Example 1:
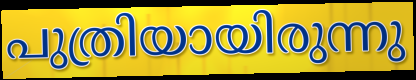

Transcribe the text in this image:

പുത്രിയായിരുന്നു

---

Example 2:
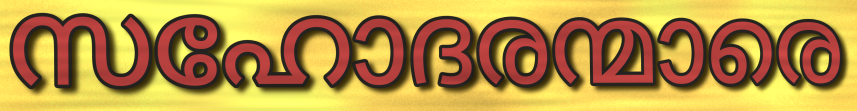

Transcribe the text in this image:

സഹോദരന്മാരെ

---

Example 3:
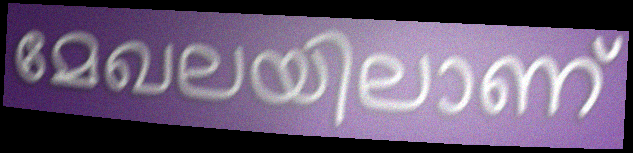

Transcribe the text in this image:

മേഖലയിലാണ്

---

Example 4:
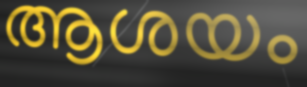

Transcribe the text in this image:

ആശയം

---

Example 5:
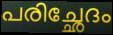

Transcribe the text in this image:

പരിച്ഛേദം